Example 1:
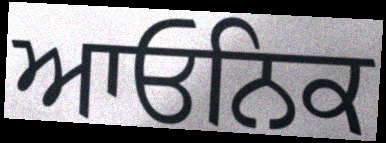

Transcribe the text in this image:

ਆਓਨਿਕ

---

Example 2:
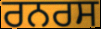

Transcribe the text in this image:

ਰਨਰਸ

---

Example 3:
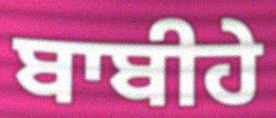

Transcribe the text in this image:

ਬਾਬੀਹੇ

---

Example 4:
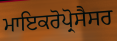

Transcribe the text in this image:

ਮਾਇਕਰੋਪ੍ਰੋਸੈਸਰ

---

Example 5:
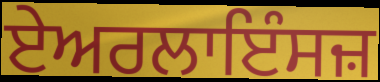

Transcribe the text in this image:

ਏਅਰਲਾਇੰਸਜ਼